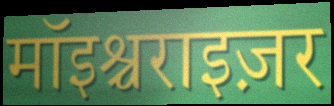
मॉइश्चराइज़र